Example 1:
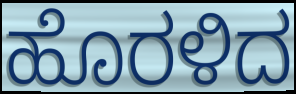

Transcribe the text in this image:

ಹೊರಳಿದ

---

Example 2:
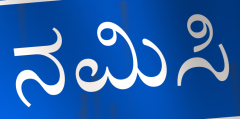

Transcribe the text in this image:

ನಮಿಸಿ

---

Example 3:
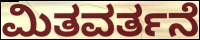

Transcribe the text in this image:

ಮಿತವರ್ತನೆ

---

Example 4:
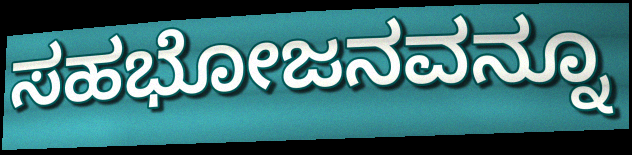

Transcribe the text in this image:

ಸಹಭೋಜನವನ್ನೂ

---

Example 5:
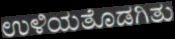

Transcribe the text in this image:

ಉಳಿಯತೊಡಗಿತು